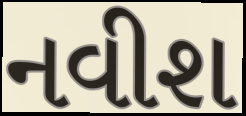
નવીશ